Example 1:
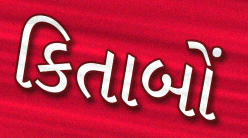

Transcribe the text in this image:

કિતાબોં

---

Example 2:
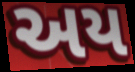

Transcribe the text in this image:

અય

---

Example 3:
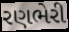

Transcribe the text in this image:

રણભેરી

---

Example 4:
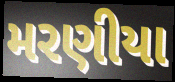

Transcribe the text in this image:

મરણીયા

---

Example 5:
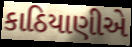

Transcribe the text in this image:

કાઠિયાણીએ